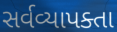
સર્વવ્યાપક્તા